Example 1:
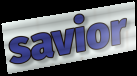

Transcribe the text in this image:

savior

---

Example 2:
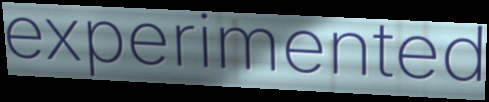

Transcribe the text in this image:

experimented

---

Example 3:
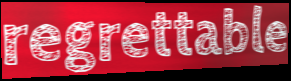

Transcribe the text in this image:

regrettable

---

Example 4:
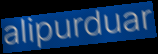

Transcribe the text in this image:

alipurduar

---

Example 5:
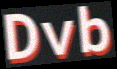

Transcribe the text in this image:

Dvb